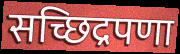
सच्छिद्रपणा